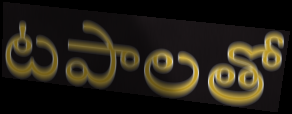
టపాలతో